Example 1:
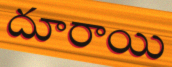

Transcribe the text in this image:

దూరాయి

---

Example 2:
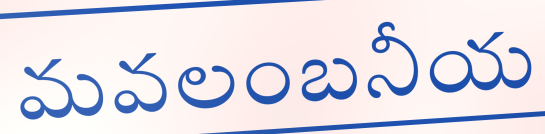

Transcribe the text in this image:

మవలంబనీయ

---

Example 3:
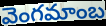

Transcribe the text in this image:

వెంగమాంబ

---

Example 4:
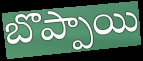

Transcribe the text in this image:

బొప్పాయి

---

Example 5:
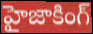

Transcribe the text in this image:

హైజాకింగ్